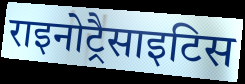
राइनोट्रैसाइटिस